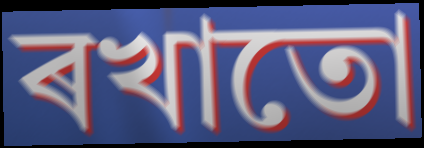
ৰখাতো